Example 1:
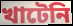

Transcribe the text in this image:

খাটেনি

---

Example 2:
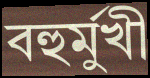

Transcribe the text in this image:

বহুর্মুখী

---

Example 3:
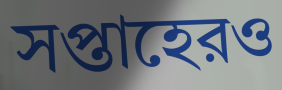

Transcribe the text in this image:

সপ্তাহেরও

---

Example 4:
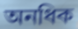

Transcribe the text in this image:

অনধিক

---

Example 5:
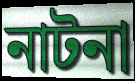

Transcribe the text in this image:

নাটনা